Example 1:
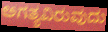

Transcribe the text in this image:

ಅಗತ್ಯವಿರುವುದು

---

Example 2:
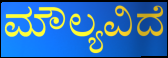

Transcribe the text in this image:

ಮೌಲ್ಯವಿದೆ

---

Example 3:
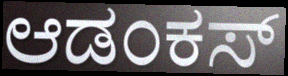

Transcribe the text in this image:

ಆಡಂಕಸ್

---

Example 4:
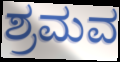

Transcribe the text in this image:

ಶ್ರಮವ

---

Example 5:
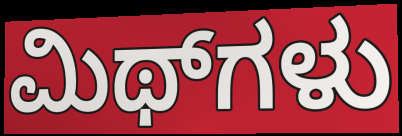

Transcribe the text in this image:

ಮಿಥ್‌ಗಳು